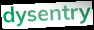
dysentry